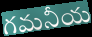
గమనీయ